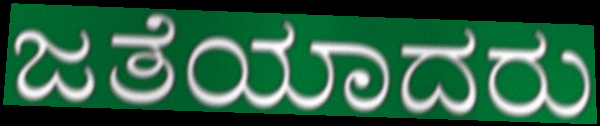
ಜತೆಯಾದರು